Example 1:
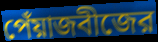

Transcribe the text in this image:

পেঁয়াজবীজের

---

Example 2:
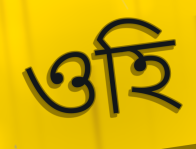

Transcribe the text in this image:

ওহি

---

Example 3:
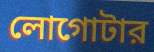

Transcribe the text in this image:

লোগোটার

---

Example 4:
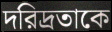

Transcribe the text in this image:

দরিদ্রতাকে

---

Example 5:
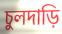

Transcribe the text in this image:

চুলদাড়ি